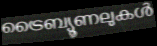
ട്രൈബ്യൂണലുകൾ